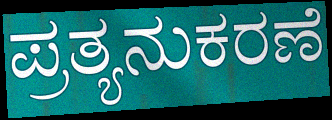
ಪ್ರತ್ಯನುಕರಣೆ